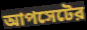
আপসেটের